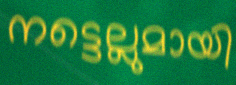
നട്ടെല്ലുമായി